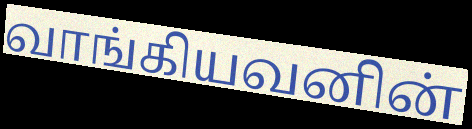
வாங்கியவனின்